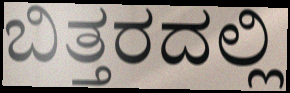
ಬಿತ್ತರದಲ್ಲಿ